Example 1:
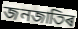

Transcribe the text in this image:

জনজাতিৰ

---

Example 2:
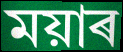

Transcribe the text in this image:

ময়াৰ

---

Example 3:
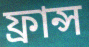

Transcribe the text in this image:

ফ্ৰান্স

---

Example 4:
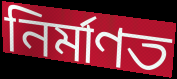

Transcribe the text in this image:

নিৰ্মাণত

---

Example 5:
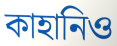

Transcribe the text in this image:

কাহানিও